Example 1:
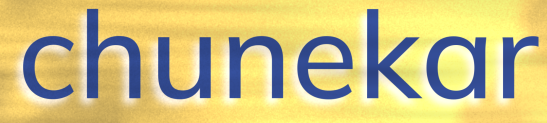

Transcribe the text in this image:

chunekar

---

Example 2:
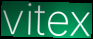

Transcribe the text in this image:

vitex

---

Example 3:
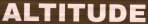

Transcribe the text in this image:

ALTITUDE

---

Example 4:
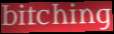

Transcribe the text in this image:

bitching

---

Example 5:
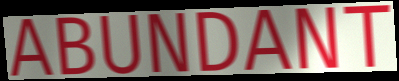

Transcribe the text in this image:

ABUNDANT